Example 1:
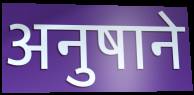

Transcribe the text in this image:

अनुषाने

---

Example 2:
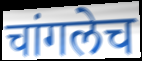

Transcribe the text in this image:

चांगलेच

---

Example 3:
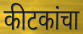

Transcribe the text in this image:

कीटकांचा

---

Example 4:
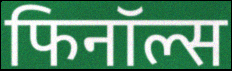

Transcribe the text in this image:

फिनॉल्स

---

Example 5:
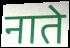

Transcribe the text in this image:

नाते